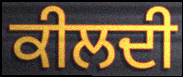
ਕੀਲਦੀ